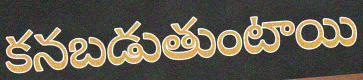
కనబడుతుంటాయి